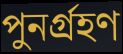
পুনর্গ্রহণ